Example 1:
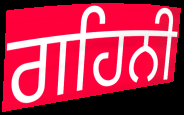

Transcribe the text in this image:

ਗਹਿਨੀ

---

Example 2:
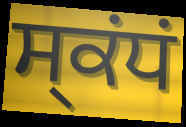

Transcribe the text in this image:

ਸ੍ਕਂਧਂ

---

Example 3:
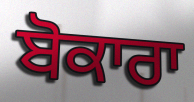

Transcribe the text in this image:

ਬੋਕਾਰਾ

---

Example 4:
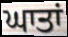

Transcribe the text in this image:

ਘਾਤਾਂ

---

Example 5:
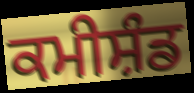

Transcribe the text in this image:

ਕਮੀਸ਼ੰਡ